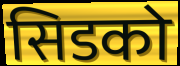
सिडको